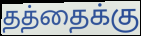
தத்தைக்கு